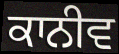
ਕਾਨੀਵ